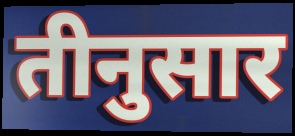
तीनुसार